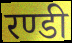
रण्डी